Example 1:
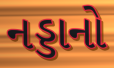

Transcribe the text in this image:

નડ્ડાનો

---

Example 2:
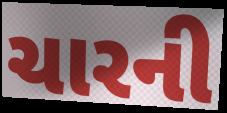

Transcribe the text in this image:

ચારની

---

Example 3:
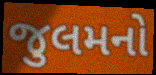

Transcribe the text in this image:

જુલમનો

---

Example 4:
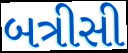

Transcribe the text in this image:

બત્રીસી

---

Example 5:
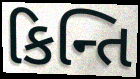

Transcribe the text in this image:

કિન્તિ